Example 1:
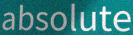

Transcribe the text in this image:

absolute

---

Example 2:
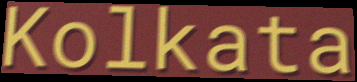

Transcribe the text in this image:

Kolkata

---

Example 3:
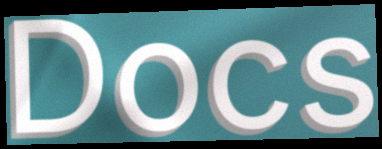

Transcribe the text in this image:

Docs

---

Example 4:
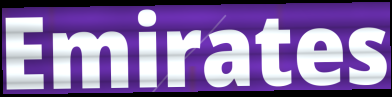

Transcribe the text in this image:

Emirates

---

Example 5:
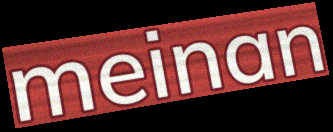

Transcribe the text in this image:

meinan